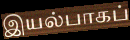
இயல்பாகப்